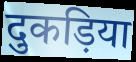
दुकड़िया